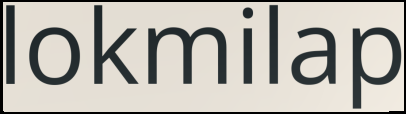
lokmilap